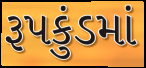
રૂપકુંડમાં